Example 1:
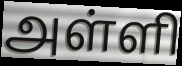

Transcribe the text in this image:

அள்ளி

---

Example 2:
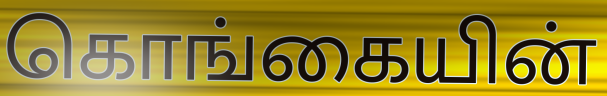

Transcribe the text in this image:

கொங்கையின்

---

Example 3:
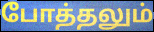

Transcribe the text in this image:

போத்தலும்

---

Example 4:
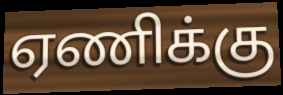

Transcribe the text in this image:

ஏணிக்கு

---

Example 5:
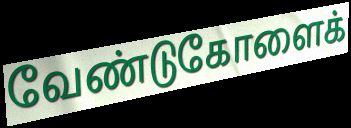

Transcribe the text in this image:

வேண்டுகோளைக்